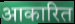
आकारित